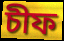
চীফ